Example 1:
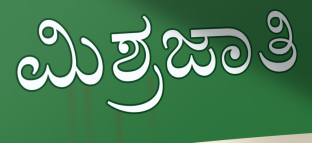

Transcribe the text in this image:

ಮಿಶ್ರಜಾತಿ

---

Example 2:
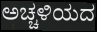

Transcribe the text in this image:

ಅಚ್ಚಳಿಯದ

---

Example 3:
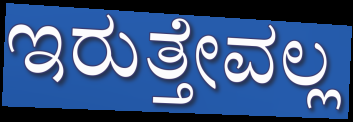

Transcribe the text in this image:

ಇರುತ್ತೇವಲ್ಲ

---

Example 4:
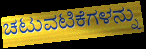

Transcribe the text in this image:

ಚಟುವಟಿಕೆಗಳನ್ನು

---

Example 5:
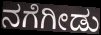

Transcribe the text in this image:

ನಗೆಗೀಡು